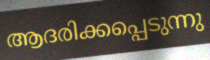
ആദരിക്കപ്പെടുന്നു